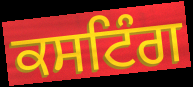
ਕਸਟਿੰਗ